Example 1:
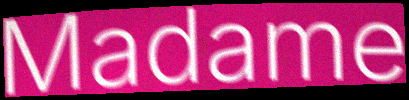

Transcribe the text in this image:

Madame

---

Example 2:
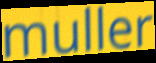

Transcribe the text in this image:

muller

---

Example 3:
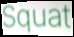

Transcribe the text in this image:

Squat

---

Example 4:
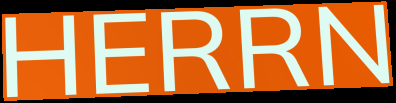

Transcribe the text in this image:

HERRN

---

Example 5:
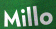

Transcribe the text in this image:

Millo